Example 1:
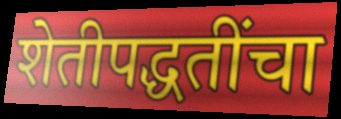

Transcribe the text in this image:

शेतीपद्धतींचा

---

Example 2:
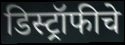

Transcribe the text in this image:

डिस्ट्रॉफीचे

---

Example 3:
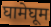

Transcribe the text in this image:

घामेघूम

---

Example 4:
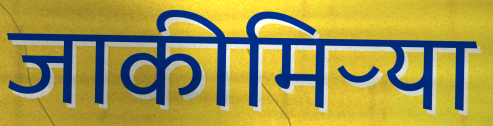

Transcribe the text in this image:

जाकीमिऱ्या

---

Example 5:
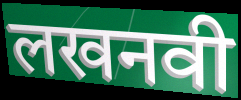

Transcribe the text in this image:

लखनवी